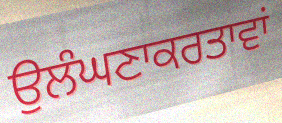
ਉਲੰਘਣਾਕਰਤਾਵਾਂ